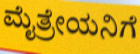
ಮೈತ್ರೇಯನಿಗೆ